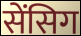
सेंसिग